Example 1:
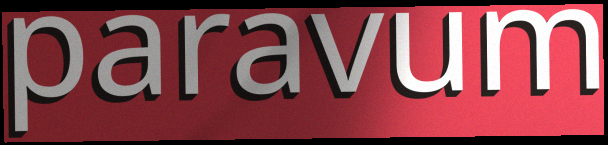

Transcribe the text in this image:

paravum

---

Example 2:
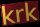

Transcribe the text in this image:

krk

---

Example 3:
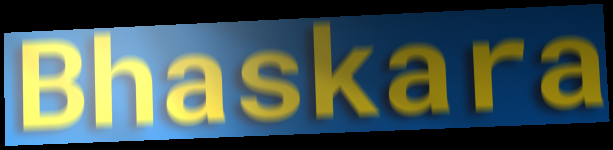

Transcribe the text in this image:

Bhaskara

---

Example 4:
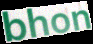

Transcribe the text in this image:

bhon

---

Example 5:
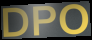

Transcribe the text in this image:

DPO